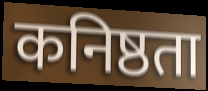
कनिष्ठता